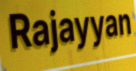
Rajayyan